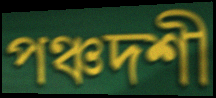
পঞ্চদশী